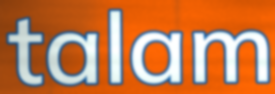
talam